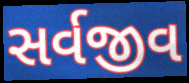
સર્વજીવ